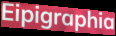
Eipigraphia